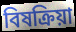
বিষক্ৰিয়া